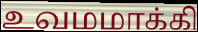
உவமமாக்கி